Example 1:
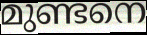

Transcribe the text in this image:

മുണ്ടനെ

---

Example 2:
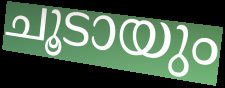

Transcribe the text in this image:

ചൂടായും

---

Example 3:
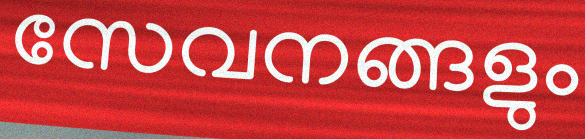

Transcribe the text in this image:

സേവനങ്ങളും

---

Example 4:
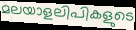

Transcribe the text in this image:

മലയാളലിപികളുടെ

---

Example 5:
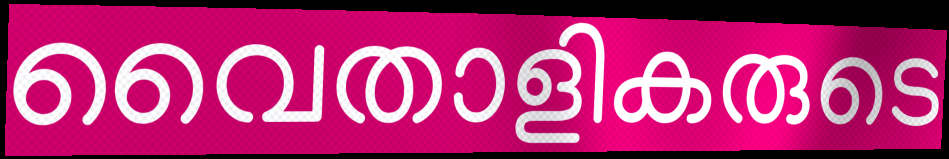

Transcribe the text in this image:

വൈതാളികരുടെ